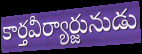
కార్తవీర్యార్జునుడు